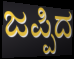
ಜಪ್ಪಿದ